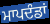
ਮਾਪਦੰਡਾਂ